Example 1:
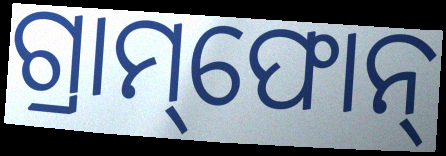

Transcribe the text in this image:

ଗ୍ରାମ୍‌ଫୋନ୍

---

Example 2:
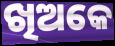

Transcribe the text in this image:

ଖିଅକେ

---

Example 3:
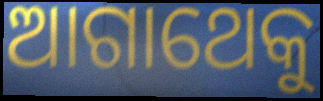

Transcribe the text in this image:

ଆଗାଥେକୁ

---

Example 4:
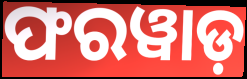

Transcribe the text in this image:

ଫରୱାଡ଼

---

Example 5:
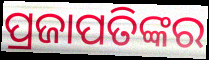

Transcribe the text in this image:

ପ୍ରଜାପତିଙ୍କର